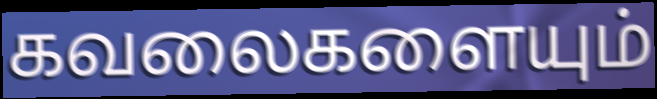
கவலைகளையும்